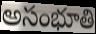
అసంభూతి